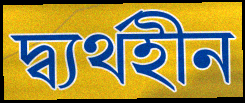
দ্ব্যর্থহীন